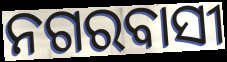
ନଗରବାସୀ